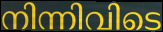
നിന്നിവിടെ